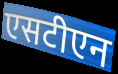
एसटीएन